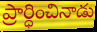
ప్రార్ధించినాడు